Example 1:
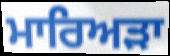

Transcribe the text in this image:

ਮਾਰਿਅੜਾ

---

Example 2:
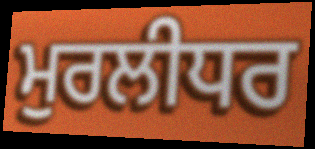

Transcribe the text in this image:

ਮੁਰਲੀਧਰ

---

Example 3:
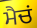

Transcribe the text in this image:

ਮੈਚਂ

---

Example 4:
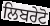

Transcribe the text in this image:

ਲਿਬਰੇਟੋ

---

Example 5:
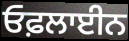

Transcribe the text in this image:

ਓਫ਼ਲਾਈਨ